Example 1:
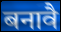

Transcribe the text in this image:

बनावै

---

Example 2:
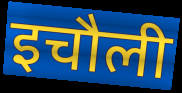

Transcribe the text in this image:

इचौली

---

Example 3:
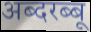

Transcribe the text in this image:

अब्दरब्बू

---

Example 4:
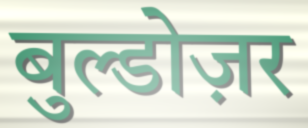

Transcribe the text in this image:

बुल्डोज़र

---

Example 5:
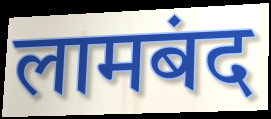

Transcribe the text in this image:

लामबंद